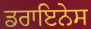
ਡਰਾਇਨੇਸ